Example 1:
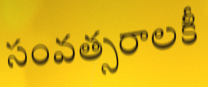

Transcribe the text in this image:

సంవత్సరాలకీ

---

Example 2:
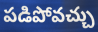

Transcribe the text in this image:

పడిపోవచ్చు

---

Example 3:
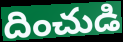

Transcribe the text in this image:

దించుడి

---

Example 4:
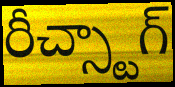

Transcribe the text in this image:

రీచ్స్టాగ్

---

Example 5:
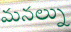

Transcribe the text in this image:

మనల్ను